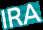
IRA